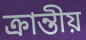
ক্রান্তীয়